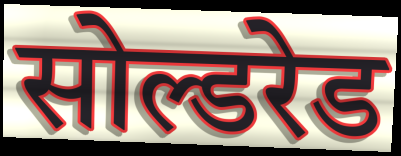
सोल्डरेड